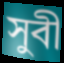
সুবী